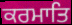
ਕਰਮਾਤਿ